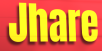
Jhare